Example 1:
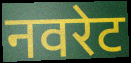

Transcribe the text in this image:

नवरेट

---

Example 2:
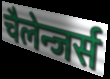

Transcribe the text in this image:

चैलेन्जर्स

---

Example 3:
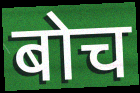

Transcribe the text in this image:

बोच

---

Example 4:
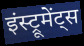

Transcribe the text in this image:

इंस्‍ट्रूमेंट्स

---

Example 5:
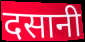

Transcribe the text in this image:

दसानी